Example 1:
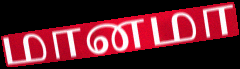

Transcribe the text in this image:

மானமா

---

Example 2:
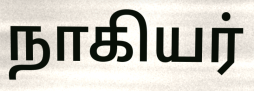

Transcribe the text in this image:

நாகியர்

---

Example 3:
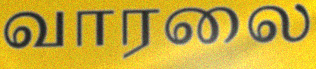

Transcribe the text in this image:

வாரலை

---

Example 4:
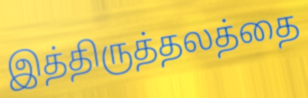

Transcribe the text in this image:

இத்திருத்தலத்தை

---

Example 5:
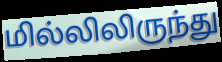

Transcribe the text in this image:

மில்லிலிருந்து